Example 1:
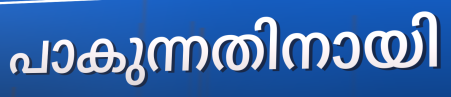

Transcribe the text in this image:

പാകുന്നതിനായി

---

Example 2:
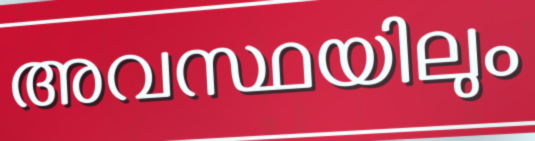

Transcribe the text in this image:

അവസ്ഥയിലും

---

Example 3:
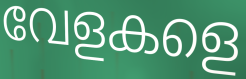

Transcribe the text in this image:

വേളകളെ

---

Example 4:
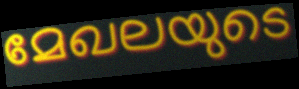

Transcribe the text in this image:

മേഖലയുടെ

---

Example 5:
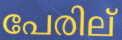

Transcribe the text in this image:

പേരില്